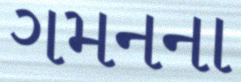
ગમનના